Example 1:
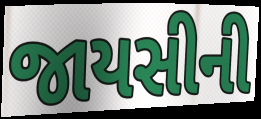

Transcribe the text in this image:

જાયસીની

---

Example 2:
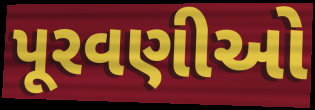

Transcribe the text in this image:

પૂરવણીઓ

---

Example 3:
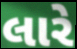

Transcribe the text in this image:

લારે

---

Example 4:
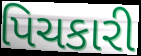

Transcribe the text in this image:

પિચકારી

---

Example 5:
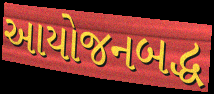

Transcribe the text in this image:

આયોજનબદ્ધ